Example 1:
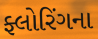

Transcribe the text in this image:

ફ્લોરિંગના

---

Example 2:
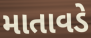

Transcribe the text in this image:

માતાવડે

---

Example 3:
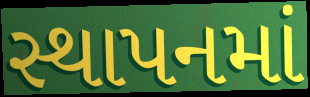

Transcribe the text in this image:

સ્થાપનમાં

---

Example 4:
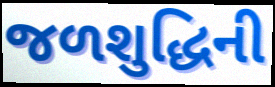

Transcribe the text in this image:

જળશુદ્ધિની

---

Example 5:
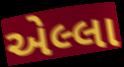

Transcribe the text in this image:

એલ્લા